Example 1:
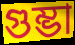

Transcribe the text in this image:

গুম্ভা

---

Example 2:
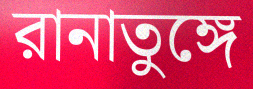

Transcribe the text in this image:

রানাতুঙ্গে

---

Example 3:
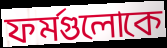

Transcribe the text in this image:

ফর্মগুলোকে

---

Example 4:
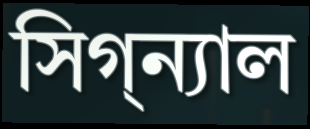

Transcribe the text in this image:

সিগ্‌ন্যাল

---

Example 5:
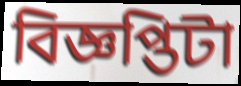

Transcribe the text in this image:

বিজ্ঞপ্তিটা